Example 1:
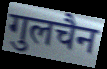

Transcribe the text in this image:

गुलचैन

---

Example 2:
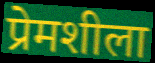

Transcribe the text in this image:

प्रेमशीला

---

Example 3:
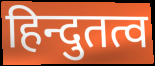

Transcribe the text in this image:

हिन्दुतत्व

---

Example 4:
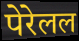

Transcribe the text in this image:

पेरेलल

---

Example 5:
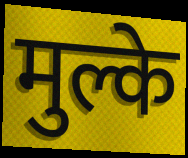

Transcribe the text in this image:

मुल्के